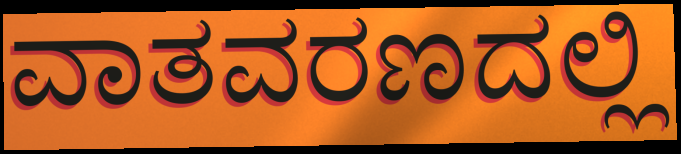
ವಾತವರಣದಲ್ಲಿ